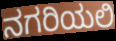
ನಗರಿಯಲಿ